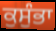
ਕੁਸੁੰਭਾ